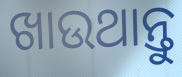
ଖାଉଥାନ୍ତୁ